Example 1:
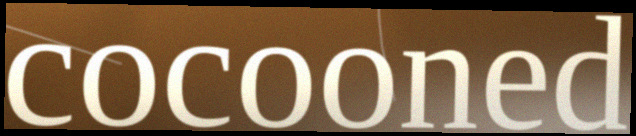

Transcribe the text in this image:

cocooned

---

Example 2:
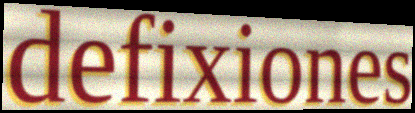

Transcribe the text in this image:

defixiones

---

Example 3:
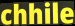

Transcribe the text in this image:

chhile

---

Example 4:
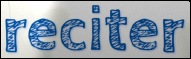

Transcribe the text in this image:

reciter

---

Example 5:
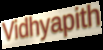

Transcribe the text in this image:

Vidhyapith